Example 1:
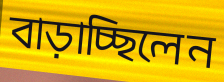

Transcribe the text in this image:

বাড়াচ্ছিলেন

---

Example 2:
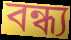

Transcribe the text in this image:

বন্ধ্য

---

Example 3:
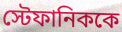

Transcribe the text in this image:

স্টেফানিককে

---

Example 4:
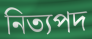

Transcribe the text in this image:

নিত্যপদ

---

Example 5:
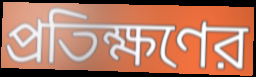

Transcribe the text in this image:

প্রতিক্ষণের